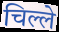
चिल्ले